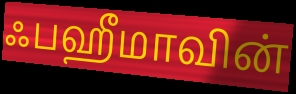
ஃபஹீமாவின்